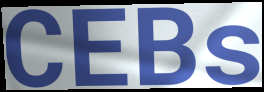
CEBs